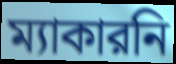
ম্যাকারনি